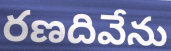
రణదివేను